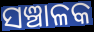
ସଞ୍ଚାଳକ